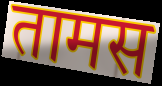
तामस